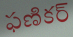
ఫణికర్